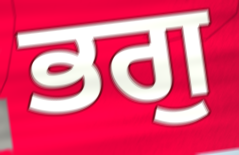
ਭਗੁ